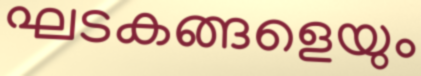
ഘടകങ്ങളെയും